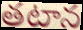
తటాన